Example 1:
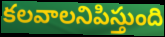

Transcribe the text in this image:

కలవాలనిపిస్తుంది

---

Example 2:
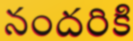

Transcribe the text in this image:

నందరికి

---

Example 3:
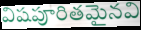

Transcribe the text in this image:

విషపూరితమైనవి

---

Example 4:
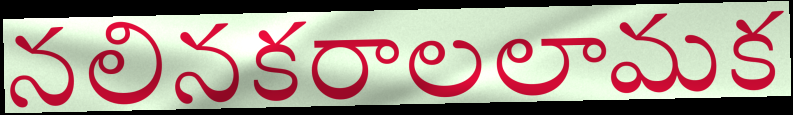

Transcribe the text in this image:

నలినకరాలలామక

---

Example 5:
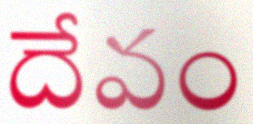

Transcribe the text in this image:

దేవం